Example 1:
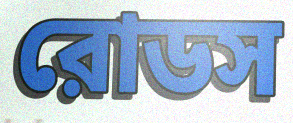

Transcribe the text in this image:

রোডস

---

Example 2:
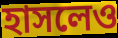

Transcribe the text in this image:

হাসলেও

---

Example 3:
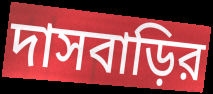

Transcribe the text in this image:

দাসবাড়ির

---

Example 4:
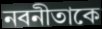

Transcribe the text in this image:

নবনীতাকে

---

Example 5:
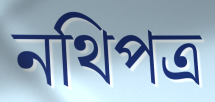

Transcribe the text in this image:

নথিপত্র